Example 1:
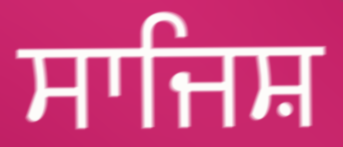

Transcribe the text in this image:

ਸਾਜਿਸ਼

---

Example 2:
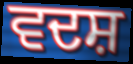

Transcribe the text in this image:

ਵਦਸ਼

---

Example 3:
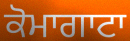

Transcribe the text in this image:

ਕੋਮਾਗਾਟਾ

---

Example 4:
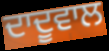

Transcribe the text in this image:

ਦਾਦੂਵਾਲ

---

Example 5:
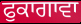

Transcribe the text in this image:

ਫੁਕਾਗਾਵਾ